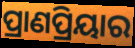
ପ୍ରାଣପ୍ରିୟାର